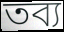
তব্য